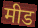
मीड